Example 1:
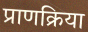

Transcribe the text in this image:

प्राणक्रिया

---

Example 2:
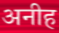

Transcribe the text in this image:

अनीह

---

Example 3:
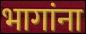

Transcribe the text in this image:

भागांना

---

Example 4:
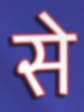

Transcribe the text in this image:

से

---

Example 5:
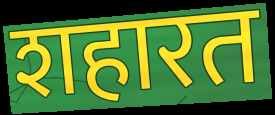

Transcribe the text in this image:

शहारत